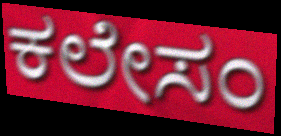
ಕಲೇಸಂ